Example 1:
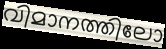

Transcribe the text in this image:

വിമാനത്തിലോ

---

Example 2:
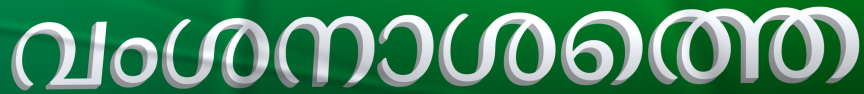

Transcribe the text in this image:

വംശനാശത്തെ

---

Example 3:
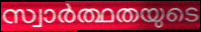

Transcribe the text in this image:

സ്വാർത്ഥതയുടെ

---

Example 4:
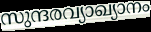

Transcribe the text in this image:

സുന്ദരവ്യാഖ്യാനം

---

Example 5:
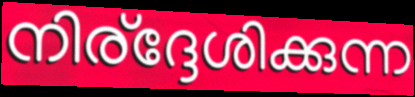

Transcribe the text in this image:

നിര്ദ്ദേശിക്കുന്ന